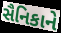
સૈનિકાને